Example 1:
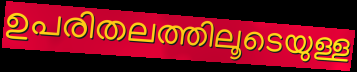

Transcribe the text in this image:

ഉപരിതലത്തിലൂടെയുള്ള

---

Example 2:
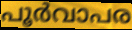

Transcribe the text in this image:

പൂർവാപര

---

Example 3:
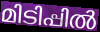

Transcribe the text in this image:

മിടിപ്പിൽ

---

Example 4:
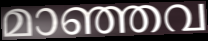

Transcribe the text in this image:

മാഞ്ഞവ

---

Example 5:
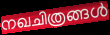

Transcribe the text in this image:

നഖചിത്രങ്ങൾ